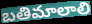
బతిమాలాలి